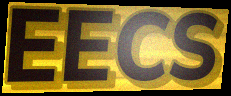
EECS